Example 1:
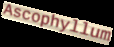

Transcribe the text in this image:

Ascophyllum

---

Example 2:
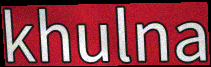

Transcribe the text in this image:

khulna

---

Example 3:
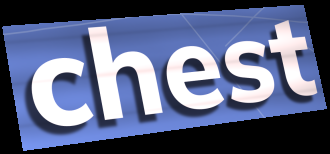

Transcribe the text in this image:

chest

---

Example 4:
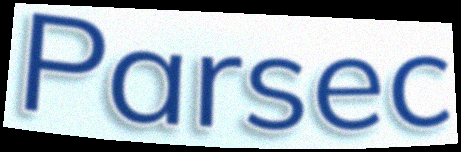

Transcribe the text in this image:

Parsec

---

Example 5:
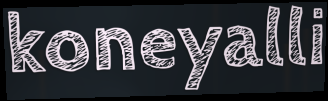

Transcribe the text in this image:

koneyalli